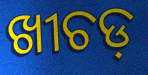
ଖୀଚଡ଼